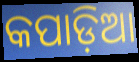
କପାଡ଼ିଆ